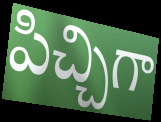
పిచ్చిగా